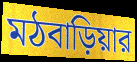
মঠবাড়িয়ার